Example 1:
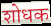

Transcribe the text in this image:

शोधक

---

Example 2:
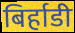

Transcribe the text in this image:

बिर्हाडी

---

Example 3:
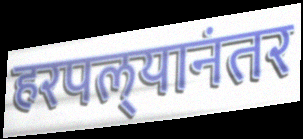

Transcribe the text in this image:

हरपल्यानंतर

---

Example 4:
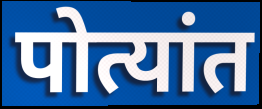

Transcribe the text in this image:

पोत्यांत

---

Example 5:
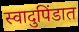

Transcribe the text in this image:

स्वादुपिंडात